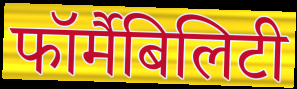
फॉर्मैबिलिटी